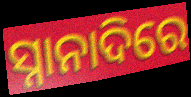
ସ୍ନାନାଦିରେ